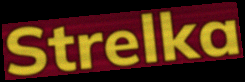
Strelka